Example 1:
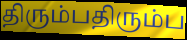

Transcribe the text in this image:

திரும்பதிரும்ப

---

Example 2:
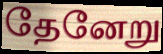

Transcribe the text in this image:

தேனேறு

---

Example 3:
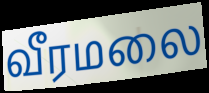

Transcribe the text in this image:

வீரமலை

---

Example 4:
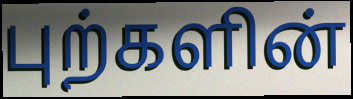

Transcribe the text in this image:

புற்களின்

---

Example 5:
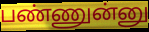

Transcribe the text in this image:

பண்ணுன்னு